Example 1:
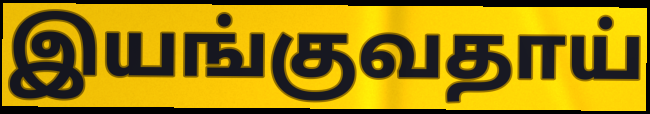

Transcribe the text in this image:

இயங்குவதாய்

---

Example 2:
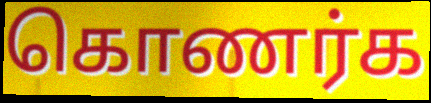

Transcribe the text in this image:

கொணர்க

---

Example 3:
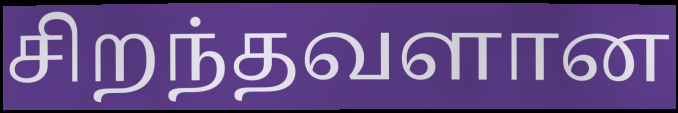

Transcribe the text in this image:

சிறந்தவளான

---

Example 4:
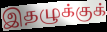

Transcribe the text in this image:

இதழுக்குக்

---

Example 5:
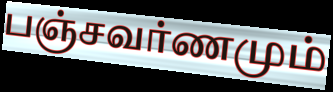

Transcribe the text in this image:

பஞ்சவர்ணமும்